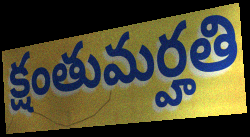
క్షంతుమర్హతి